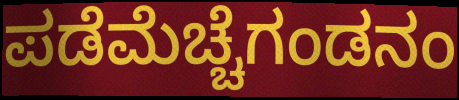
ಪಡೆಮೆಚ್ಚೆಗಂಡನಂ